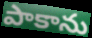
పాకాను